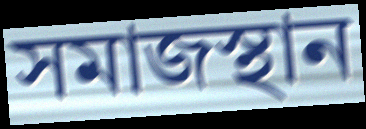
সমাজস্থান